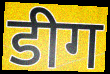
डीग